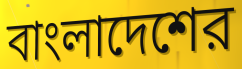
বাংলাদেশের